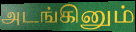
அடங்கினும்